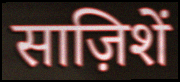
साज़िशें